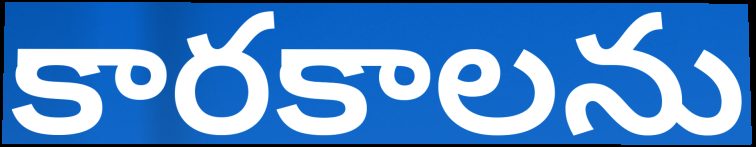
కారకాలను